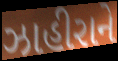
ઝાહીરાને